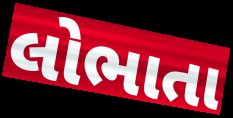
લોભાતા